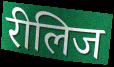
रीलिज